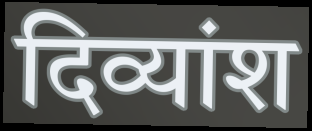
दिव्यांश